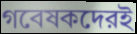
গবেষকদেরই